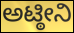
ಅಟ್ಠೀನಿ